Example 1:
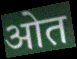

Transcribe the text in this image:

ओत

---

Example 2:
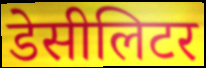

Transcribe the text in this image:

डेसीलिटर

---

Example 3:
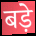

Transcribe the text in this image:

बड़े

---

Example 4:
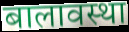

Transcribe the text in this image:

बालावस्था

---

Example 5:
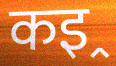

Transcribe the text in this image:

कइ्र